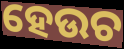
ହେଉଚ